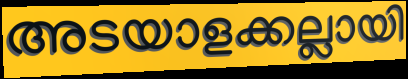
അടയാളക്കല്ലായി